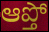
ఆప్తో